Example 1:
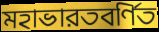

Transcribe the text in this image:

মহাভারতবর্ণিত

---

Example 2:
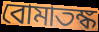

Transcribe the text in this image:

বোমাতঙ্ক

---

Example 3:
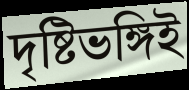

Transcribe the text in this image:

দৃষ্টিভঙ্গিই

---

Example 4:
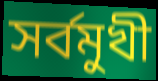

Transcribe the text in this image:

সর্বমুখী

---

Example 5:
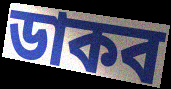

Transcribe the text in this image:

ডাকব